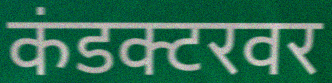
कंडक्टरवर